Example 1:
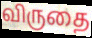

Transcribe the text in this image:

விருதை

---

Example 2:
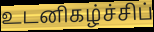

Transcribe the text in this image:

உடனிகழ்ச்சிப்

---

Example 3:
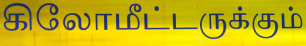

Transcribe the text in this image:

கிலோமீட்டருக்கும்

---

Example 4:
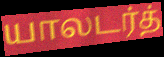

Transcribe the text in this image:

யாலடர்த்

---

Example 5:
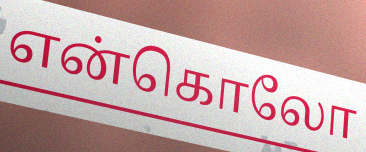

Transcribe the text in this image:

என்கொலோ